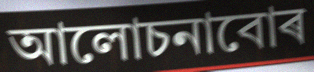
আলোচনাবোৰ